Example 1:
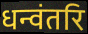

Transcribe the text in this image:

धन्वंतरि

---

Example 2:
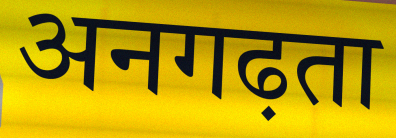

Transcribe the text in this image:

अनगढ़ता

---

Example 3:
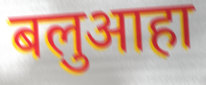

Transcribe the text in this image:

बलुआहा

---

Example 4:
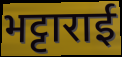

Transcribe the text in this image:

भट्टाराई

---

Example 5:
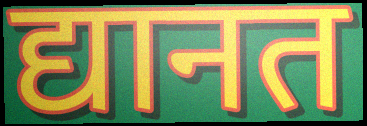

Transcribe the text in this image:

द्यानत